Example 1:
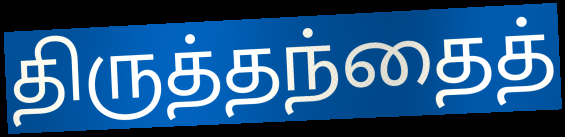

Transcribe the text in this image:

திருத்தந்தைத்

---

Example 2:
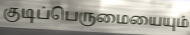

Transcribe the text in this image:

குடிப்பெருமையையும்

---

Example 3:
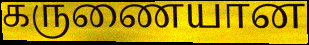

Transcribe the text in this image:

கருணையான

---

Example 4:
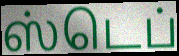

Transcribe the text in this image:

ஸ்டெப்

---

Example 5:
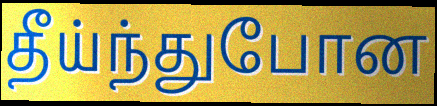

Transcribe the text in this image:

தீய்ந்துபோன